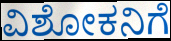
ವಿಶೋಕನಿಗೆ